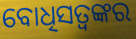
ବୋଧିସତ୍ୱଙ୍କର